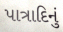
પાત્રાદિનું